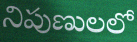
నిపుణులలో